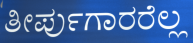
ತೀರ್ಪುಗಾರರೆಲ್ಲ